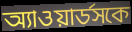
অ্যাওয়ার্ডসকে